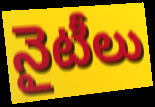
నైటీలు